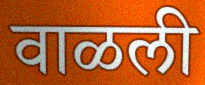
वाळली